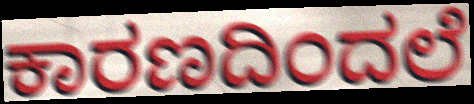
ಕಾರಣದಿಂದಲೆ